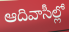
ఆదివాసీల్లో